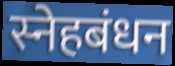
स्नेहबंधन